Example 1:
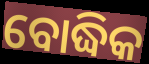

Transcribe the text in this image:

ବୋଦ୍ଧିକ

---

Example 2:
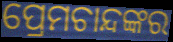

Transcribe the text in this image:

ପ୍ରେମଚାନ୍ଦଙ୍କର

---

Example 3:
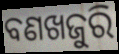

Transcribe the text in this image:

ବଣଖଜୁରି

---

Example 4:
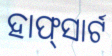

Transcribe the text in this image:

ହାଫ୍‍ସାର୍ଟ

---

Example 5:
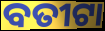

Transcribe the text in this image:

ବତୀଟା